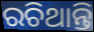
ରଚିଥାନ୍ତି